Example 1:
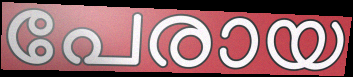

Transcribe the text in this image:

പേരായ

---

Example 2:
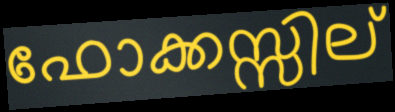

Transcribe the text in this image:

ഫോക്കസ്സില്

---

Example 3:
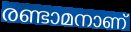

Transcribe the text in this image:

രണ്ടാമനാണ്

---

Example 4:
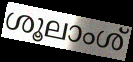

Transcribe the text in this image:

ശൂലാംശ്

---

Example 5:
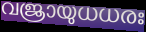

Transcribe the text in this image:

വജ്രായുധധരഃ